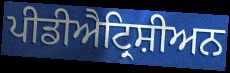
ਪੀਡੀਐਟ੍ਰਿਸ਼ੀਅਨ